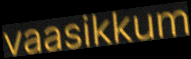
vaasikkum